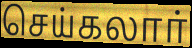
செய்கலார்